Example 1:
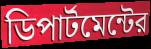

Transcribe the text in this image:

ডিপার্টমেন্টের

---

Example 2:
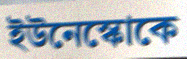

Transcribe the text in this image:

ইউনেস্কোকে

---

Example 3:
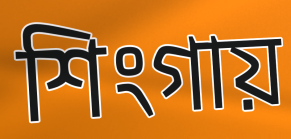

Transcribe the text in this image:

শিংগায়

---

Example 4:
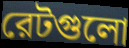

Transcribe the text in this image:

রেটগুলো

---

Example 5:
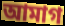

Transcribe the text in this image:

আমাগ